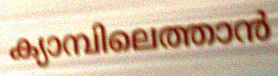
ക്യാമ്പിലെത്താൻ